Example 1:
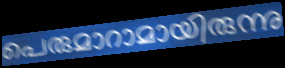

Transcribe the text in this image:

പെരുമാറാമായിരുന്നു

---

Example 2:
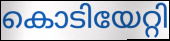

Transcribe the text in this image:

കൊടിയേറ്റി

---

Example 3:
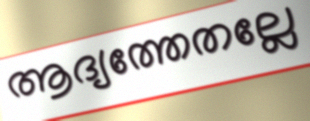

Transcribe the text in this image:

ആദ്യത്തേതല്ലേ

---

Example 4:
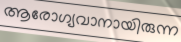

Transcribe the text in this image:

ആരോഗ്യവാനായിരുന്ന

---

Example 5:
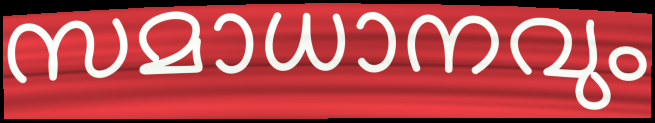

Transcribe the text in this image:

സമാധാനവും